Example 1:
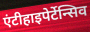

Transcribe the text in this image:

एंटीहाइपेर्टेन्सिव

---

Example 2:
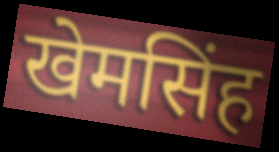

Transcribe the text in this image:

खेमसिंह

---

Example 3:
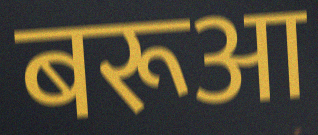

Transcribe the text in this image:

बरूआ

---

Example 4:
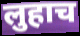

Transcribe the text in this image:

लुहाच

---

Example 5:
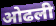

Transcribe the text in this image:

ओढली